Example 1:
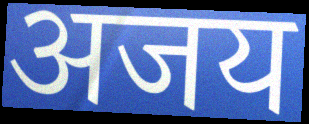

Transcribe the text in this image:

अजय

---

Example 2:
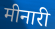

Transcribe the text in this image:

मीनारी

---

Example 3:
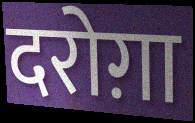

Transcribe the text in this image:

दरोग़ा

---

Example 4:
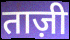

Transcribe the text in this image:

ताज़ी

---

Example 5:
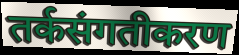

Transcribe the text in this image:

तर्कसंगतीकरण